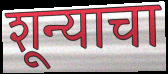
शून्याचा